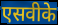
एसवीके